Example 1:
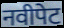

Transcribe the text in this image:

नवीपेट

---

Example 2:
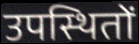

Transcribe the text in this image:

उपस्थितों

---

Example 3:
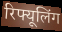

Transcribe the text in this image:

रिफ्यूलिंग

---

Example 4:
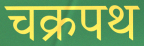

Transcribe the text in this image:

चक्रपथ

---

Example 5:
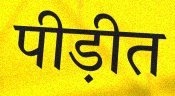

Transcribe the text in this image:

पीड़ीत